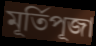
মূর্তিপূজা